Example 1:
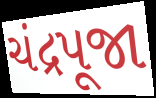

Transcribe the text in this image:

ચંદ્રપૂજા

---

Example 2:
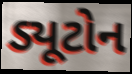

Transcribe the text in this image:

ડ્યૂટોન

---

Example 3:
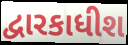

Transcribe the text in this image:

દ્વારકાધીશ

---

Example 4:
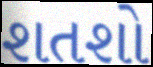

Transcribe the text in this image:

શતશો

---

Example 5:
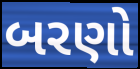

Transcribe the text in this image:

બરણો